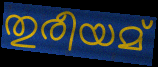
തുരീയമ്